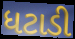
ધટાડી